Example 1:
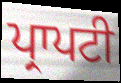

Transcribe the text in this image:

ਪ੍ਰਾਪਟੀ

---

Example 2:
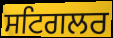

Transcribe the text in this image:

ਸਟਿਗਲਰ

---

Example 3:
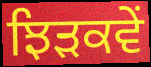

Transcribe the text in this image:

ਝਿੜਕਵੇਂ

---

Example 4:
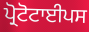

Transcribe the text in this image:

ਪ੍ਰੋਟੋਟਾਈਪਸ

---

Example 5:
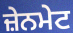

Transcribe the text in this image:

ਜ਼ੇਨਮੇਟ